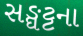
સઙ્ઘટ્ટના